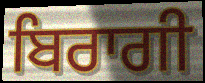
ਬਿਰਾਗੀ